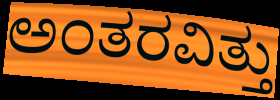
ಅಂತರವಿತ್ತು